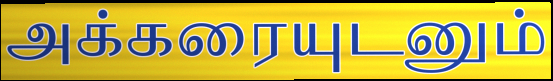
அக்கரையுடனும்